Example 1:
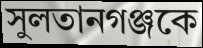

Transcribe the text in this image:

সুলতানগঞ্জকে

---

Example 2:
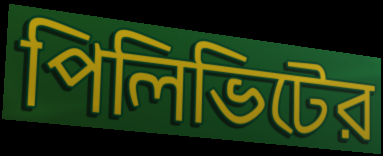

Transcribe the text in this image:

পিলিভিটের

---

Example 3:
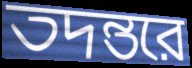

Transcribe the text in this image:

তদন্তরে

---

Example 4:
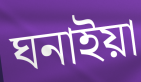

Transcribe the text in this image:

ঘনাইয়া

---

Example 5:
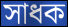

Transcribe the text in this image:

সাধক